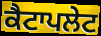
ਕੈਟਾਪਲੇਟ